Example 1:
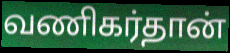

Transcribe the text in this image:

வணிகர்தான்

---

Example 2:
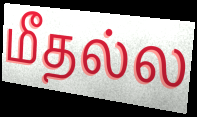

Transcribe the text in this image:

மீதல்ல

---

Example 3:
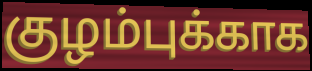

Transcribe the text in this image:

குழம்புக்காக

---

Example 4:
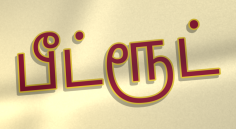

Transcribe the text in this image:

பீட்ரூட்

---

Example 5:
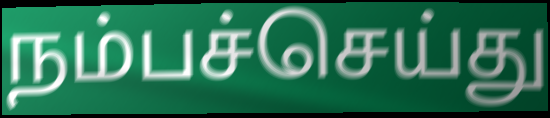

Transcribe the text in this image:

நம்பச்செய்து